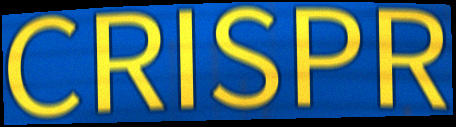
CRISPR